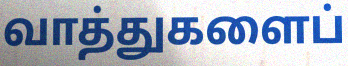
வாத்துகளைப்